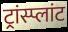
ट्रांस्प्लांट